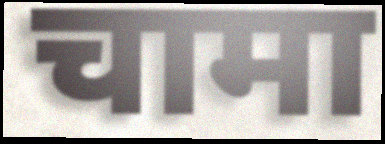
चामा